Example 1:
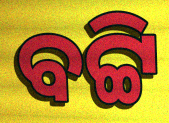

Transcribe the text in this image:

ବଟ୍ଟି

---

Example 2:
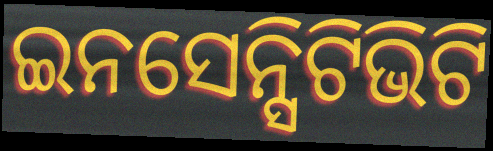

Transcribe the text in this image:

ଇନସେନ୍ସିଟିଭିଟି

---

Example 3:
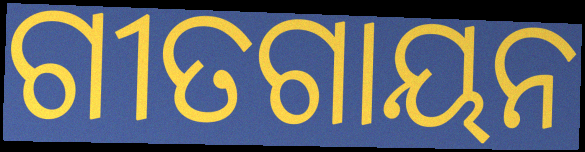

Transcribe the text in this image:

ଗୀତଗାୟନ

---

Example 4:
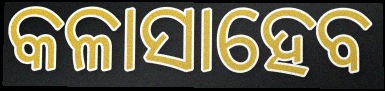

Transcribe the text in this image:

କଳାସାହେବ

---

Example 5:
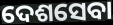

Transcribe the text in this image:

ଦେଶସେବା